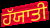
ਹੱਯਾਤੀ